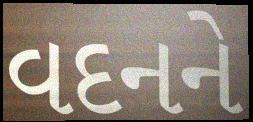
વદનને